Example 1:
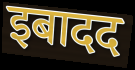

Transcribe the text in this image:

इबादद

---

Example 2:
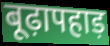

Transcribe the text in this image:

बूढ़ापहाड़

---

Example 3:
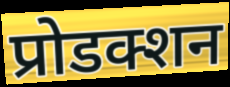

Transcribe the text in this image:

प्रोडक्शन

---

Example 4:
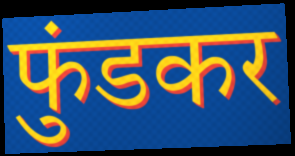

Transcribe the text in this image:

फुंडकर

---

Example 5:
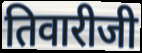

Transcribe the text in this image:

तिवारीजी